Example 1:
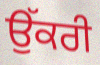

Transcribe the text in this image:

ਉੱਕਰੀ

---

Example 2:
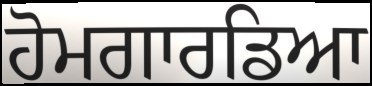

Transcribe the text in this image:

ਹੋਮਗਾਰਡਿਆ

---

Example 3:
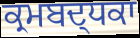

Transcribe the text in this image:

ਕ੍ਰਮਬਦ੍ਧਕਾ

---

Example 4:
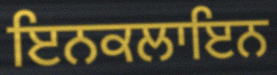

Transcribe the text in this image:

ਇਨਕਲਾਇਨ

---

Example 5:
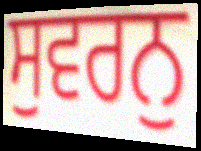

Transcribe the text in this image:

ਸੁਵਰਨੁ